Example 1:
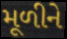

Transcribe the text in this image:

મૂળીને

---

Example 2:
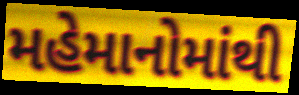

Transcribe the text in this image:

મહેમાનોમાંથી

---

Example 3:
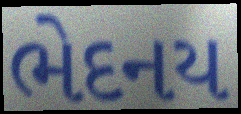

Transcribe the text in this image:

ભેદનય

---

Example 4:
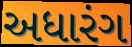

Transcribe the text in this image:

અધારંગ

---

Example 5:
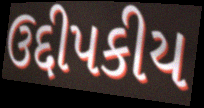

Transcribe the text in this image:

ઉદ્દીપકીય